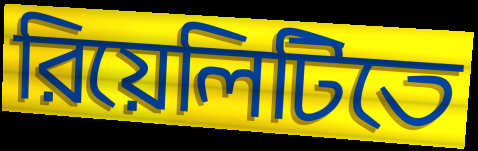
রিয়েলিটিতে